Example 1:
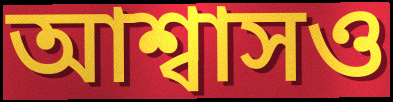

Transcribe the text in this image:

আশ্বাসও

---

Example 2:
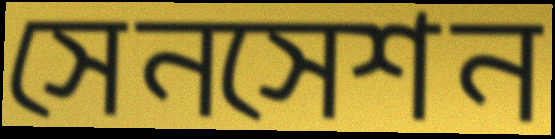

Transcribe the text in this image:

সেনসেশন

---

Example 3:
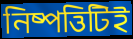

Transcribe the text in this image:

নিষ্পত্তিটিই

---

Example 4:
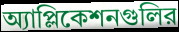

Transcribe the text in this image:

অ্যাপ্লিকেশনগুলির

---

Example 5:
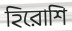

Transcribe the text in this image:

হিরোশি